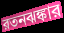
রতনঝঙ্কার